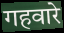
गहवारे